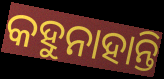
କହୁନାହାନ୍ତି